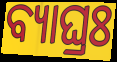
ବ୍ୟାଘ୍ରଃ